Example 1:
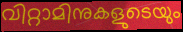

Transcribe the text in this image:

വിറ്റാമിനുകളുടെയും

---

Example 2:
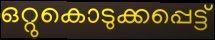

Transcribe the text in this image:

ഒറ്റുകൊടുക്കപ്പെട്ട്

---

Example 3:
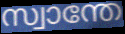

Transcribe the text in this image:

സ്വാന്തേ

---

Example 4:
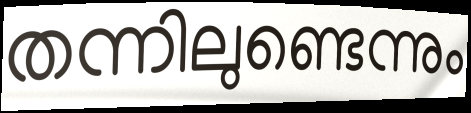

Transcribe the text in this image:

തന്നിലുണ്ടെന്നും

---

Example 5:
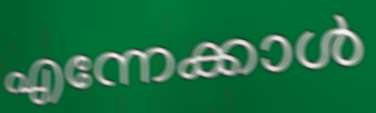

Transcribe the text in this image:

എന്നേക്കാൾ